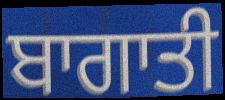
ਬਾਗਾਤੀ